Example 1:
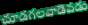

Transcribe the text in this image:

చూడగలవాడెవడు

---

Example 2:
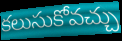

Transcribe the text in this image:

కలుసుకోవచ్చు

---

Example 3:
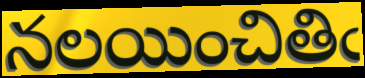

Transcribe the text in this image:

నలయించితిఁ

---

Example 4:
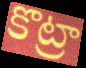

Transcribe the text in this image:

కొట్రా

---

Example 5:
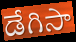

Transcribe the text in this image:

డేగిసా